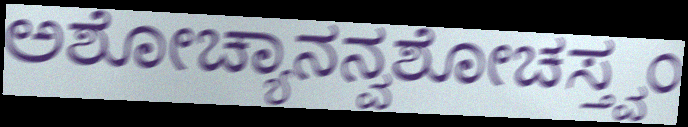
ಅಶೋಚ್ಯಾನನ್ವಶೋಚಸ್ತ್ವಂ